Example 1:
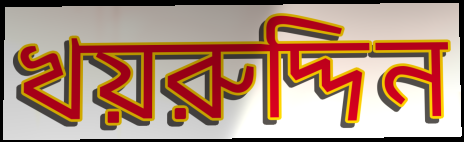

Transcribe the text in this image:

খয়রুদ্দিন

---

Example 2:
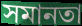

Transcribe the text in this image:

সমানতা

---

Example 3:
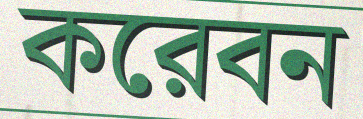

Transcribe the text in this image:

করেবন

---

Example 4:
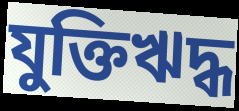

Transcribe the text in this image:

যুক্তিঋদ্ধ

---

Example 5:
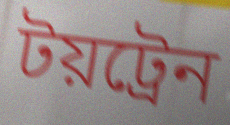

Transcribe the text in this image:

টয়ট্রেন